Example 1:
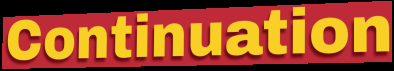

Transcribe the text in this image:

Continuation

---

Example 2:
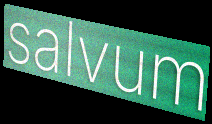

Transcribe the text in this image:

salvum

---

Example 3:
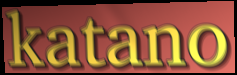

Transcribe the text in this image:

katano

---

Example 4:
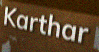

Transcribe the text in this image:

Karthar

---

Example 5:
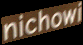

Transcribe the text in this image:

nichowi